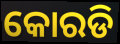
କୋରଡି